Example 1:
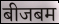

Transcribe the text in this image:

बीजबम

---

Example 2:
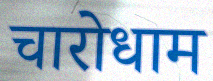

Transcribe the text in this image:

चारोधाम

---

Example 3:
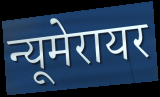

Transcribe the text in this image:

न्यूमेरायर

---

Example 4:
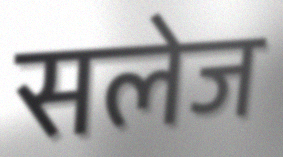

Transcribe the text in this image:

सलेज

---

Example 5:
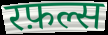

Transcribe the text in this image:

रफ़ल्स